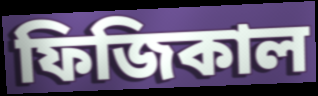
ফিজিকাল